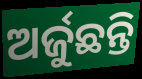
ଅର୍ଜୁଛନ୍ତି